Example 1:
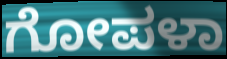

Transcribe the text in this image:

ಗೋಪಳಾ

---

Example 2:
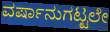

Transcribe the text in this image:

ವರ್ಷಾನುಗಟ್ಟಲೇ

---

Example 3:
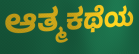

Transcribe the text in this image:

ಆತ್ಮಕಥೆಯ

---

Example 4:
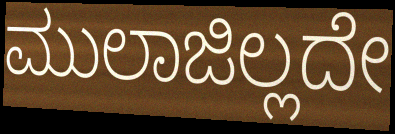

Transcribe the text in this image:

ಮುಲಾಜಿಲ್ಲದೇ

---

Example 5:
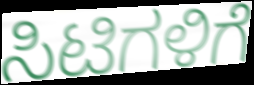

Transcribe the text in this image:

ಸಿಟಿಗಳಿಗೆ